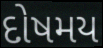
દોષમય